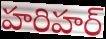
హరిహర్